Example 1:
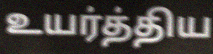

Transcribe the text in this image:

உயர்த்திய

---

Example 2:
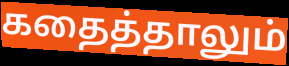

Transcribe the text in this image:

கதைத்தாலும்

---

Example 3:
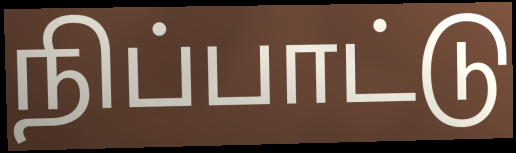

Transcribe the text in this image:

நிப்பாட்டு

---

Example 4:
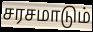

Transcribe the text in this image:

சரசமாடும்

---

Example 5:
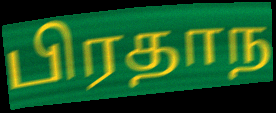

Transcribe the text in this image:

பிரதாந